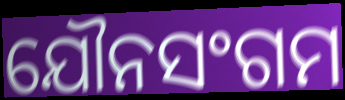
ଯୌନସଂଗମ